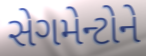
સેગમેન્ટોને